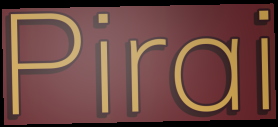
Pirai